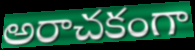
అరాచకంగా